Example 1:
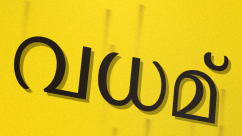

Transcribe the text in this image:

വധമ്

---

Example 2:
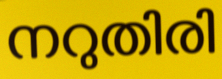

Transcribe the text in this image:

നറുതിരി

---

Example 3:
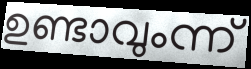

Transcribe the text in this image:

ഉണ്ടാവുംന്ന്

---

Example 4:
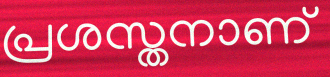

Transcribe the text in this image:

പ്രശസ്തനാണ്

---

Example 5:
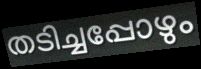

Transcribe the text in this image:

തടിച്ചപ്പോഴും